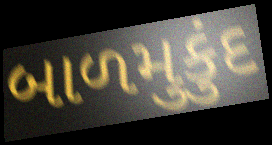
બાળમુકુંદ